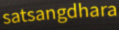
satsangdhara